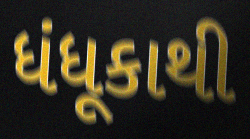
ધંધૂકાથી